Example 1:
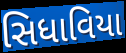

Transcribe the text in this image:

સિધાવિયા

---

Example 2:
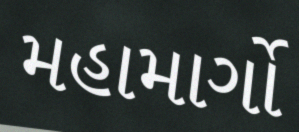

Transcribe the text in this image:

મહામાર્ગો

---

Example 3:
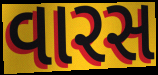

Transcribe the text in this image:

વારસ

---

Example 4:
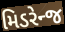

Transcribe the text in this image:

મિડરેન્જ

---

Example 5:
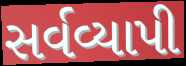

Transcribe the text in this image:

સર્વવ્યાપી